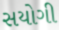
સયોગી